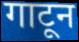
गाटून